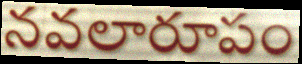
నవలారూపం